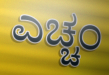
ಎಚ್ಚಂ